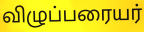
விழுப்பரையர்